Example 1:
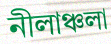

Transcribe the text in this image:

নীলাঞ্চলা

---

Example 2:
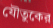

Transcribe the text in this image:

যৌতুকের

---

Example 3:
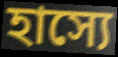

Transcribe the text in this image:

হাস্যে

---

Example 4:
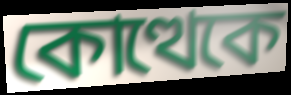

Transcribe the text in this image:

কোত্থেকে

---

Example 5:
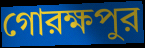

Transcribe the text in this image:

গোরক্ষপুর